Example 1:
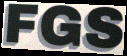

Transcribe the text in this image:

FGS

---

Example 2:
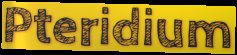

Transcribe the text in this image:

Pteridium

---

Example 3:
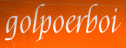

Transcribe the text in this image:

golpoerboi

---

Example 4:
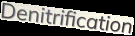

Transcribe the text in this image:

Denitrification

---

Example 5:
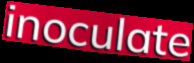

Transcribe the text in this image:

inoculate